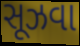
સૂઝવા